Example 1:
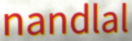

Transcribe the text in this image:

nandlal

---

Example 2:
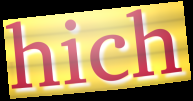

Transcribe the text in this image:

hich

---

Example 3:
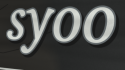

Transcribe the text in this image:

syoo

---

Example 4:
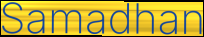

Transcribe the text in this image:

Samadhan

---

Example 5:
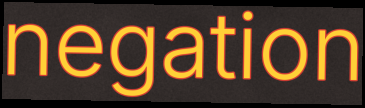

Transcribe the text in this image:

negation